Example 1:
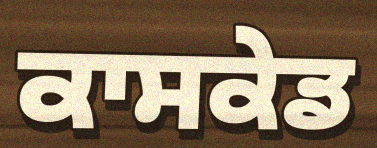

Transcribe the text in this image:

ਕਾਸਕੇਡ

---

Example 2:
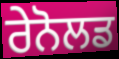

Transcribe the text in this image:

ਰੇਨੋਲਡ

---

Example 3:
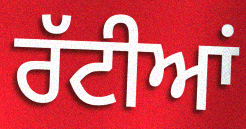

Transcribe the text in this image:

ਰੱਟੀਆਂ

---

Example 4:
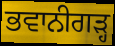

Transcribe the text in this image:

ਭਵਾਨੀਗੜ੍ਹ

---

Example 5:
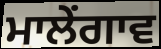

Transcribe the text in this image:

ਮਾਲੇਂਗਾਵ